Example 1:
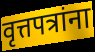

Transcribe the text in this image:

वृत्तपत्रांना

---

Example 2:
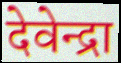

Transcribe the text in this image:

देवेन्द्रा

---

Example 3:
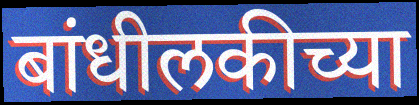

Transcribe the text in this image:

बांधीलकीच्या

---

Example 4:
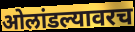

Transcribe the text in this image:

ओलांडल्यावरच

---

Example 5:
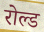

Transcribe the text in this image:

रोल्ड